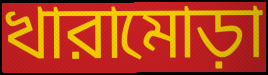
খারামোড়া